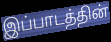
இப்பாடத்தின்